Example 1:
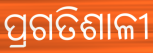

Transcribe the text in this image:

ପ୍ରଗତିଶାଳୀ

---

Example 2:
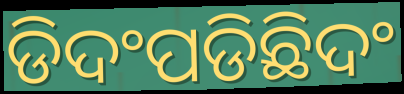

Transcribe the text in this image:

ଡିଦଂପଡିଛିଦଂ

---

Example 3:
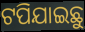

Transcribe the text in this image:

ଟପିଯାଇଛୁ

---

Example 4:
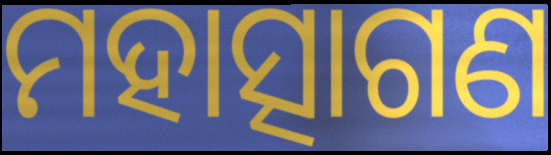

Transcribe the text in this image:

ମହାତ୍ସାଗଣ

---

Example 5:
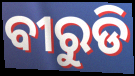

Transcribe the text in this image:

ବୀରୁଡି